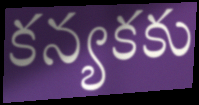
కన్యకకు